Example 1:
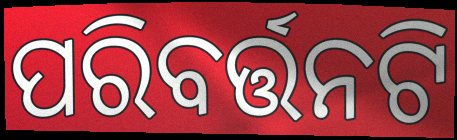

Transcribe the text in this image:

ପରିବର୍ତ୍ତନଟି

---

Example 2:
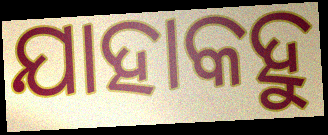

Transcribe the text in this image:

ଯାହାକହୁ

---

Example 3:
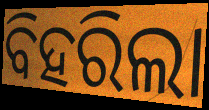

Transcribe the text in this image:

ବିହରିଲା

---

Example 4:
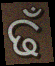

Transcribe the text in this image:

ଢଁ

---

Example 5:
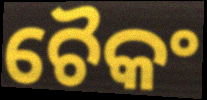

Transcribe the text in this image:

ଚୈକଂ